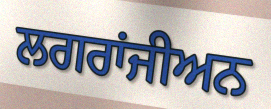
ਲਗਰਾਂਜੀਅਨ